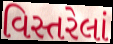
વિસ્તરેલાં